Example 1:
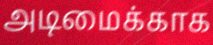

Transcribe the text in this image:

அடிமைக்காக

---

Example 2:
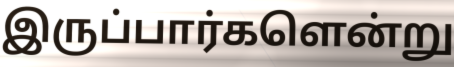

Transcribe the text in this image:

இருப்பார்களென்று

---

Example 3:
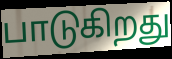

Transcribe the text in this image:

பாடுகிறது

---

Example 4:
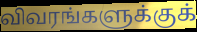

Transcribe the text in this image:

விவரங்களுக்குக்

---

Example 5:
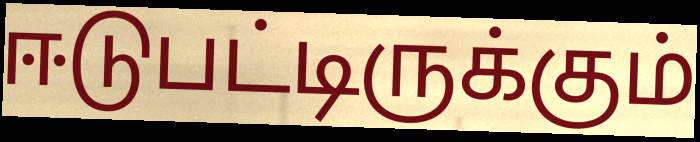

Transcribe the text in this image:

ஈடுபட்டிருக்கும்